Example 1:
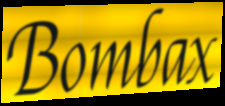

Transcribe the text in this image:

Bombax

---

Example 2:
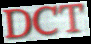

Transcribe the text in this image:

DCT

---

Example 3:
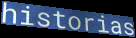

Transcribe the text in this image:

historias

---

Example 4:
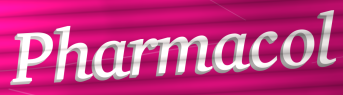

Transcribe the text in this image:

Pharmacol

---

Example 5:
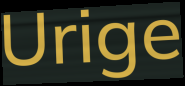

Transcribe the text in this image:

Urige